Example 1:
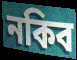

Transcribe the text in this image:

নকিব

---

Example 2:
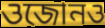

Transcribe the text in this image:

ওজোনও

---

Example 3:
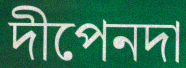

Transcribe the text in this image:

দীপেনদা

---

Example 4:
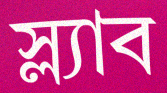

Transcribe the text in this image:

স্ল্যাব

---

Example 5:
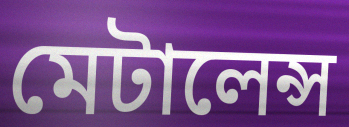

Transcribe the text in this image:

মেটালেন্স